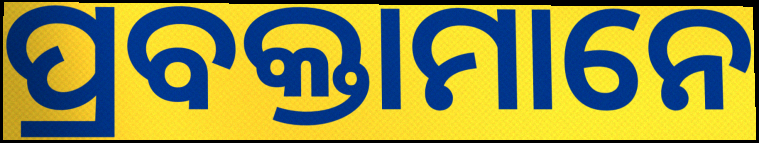
ପ୍ରବକ୍ତାମାନେ